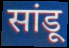
सांडू